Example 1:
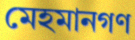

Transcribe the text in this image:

মেহমানগণ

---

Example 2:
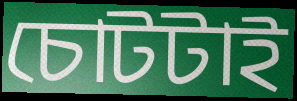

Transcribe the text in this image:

চোটটাই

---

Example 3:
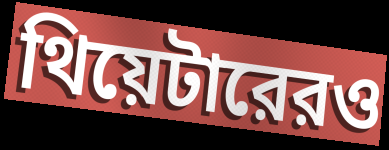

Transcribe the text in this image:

থিয়েটারেরও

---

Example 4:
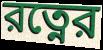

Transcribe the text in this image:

রত্নের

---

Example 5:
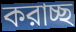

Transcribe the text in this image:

করাচ্ছ